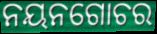
ନୟନଗୋଚର